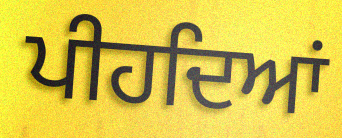
ਪੀਹਦਿਆਂ